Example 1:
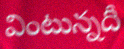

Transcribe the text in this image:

వింటున్నదీ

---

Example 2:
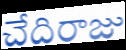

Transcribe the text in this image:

చేదిరాజు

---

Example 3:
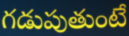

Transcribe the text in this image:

గడుపుతుంటే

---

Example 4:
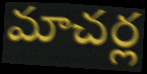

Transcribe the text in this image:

మాచర్ల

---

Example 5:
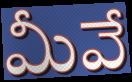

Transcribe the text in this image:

మీవే